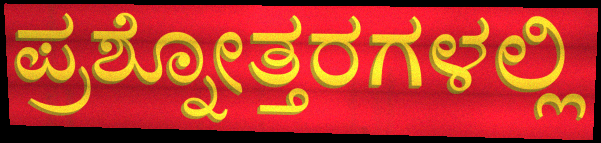
ಪ್ರಶ್ನೋತ್ತರಗಳಲ್ಲಿ